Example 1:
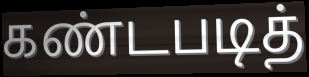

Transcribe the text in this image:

கண்டபடித்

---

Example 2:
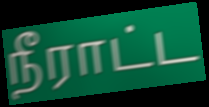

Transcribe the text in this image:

நீராட்ட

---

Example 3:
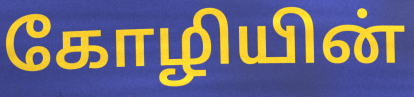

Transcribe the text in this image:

கோழியின்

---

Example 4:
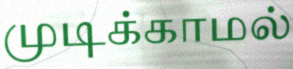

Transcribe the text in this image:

முடிக்காமல்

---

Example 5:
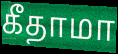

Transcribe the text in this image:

கீதாமா